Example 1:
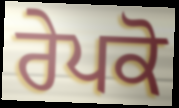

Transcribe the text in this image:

ਰੇਪਕੋ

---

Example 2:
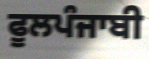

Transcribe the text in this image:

ਫੂਲਪੰਜਾਬੀ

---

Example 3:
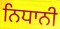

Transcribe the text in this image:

ਨਿਧਾਨੀ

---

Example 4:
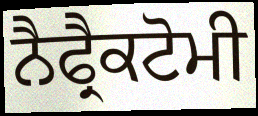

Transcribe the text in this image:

ਨੈਫ੍ਰੈਕਟੋਮੀ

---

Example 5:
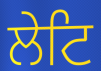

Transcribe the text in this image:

ਲੇਟਿ